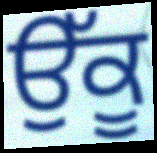
ਉੱਕੂ